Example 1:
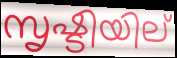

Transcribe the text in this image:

സൃഷ്ടിയില്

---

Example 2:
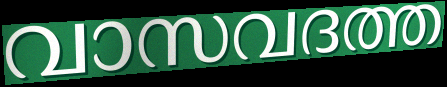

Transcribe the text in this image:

വാസവദത്ത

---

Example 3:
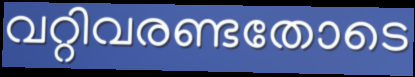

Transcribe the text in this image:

വറ്റിവരണ്ടതോടെ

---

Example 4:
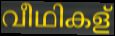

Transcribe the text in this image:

വീഥികള്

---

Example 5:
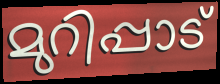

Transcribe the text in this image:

മുറിപ്പാട്